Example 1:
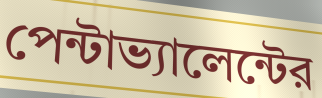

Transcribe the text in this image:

পেন্টাভ্যালেন্টের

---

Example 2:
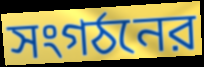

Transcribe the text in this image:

সংগঠনের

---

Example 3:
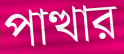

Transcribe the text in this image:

পাত্থার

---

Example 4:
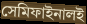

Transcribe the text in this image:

সেমিফাইনালই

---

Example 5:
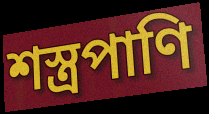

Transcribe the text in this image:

শস্ত্রপাণি